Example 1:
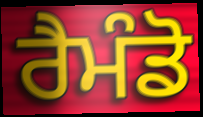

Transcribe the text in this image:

ਰੈਮੰਡੋ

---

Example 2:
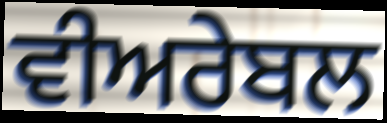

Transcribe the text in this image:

ਵੀਅਰੇਬਲ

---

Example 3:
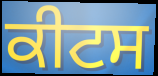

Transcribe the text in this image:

ਕੀਟਸ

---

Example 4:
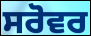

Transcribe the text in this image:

ਸਰੋਵਰ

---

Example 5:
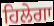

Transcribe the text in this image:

ਹਿਲੇਗਾ